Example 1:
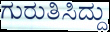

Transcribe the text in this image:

ಗುರುತಿಸಿದ್ದು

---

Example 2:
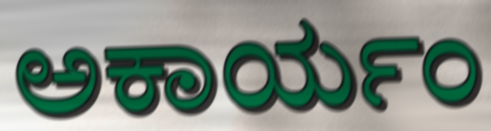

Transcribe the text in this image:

ಅಕಾರ್ಯಂ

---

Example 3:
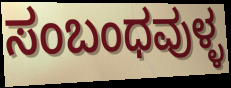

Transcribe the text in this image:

ಸಂಬಂಧವುಳ್ಳ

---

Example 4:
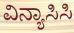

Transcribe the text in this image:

ವಿನ್ಯಾಸಿಸಿ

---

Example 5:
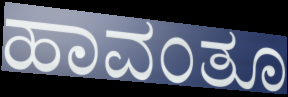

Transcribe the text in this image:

ಹಾವಂತೂ